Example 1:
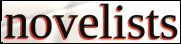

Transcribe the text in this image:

novelists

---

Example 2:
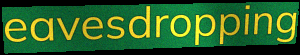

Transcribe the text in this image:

eavesdropping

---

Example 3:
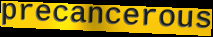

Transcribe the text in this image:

precancerous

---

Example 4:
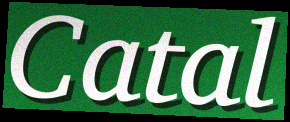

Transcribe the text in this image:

Catal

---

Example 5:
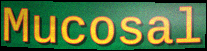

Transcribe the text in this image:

Mucosal